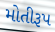
મોતીરૂપ